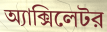
অ্যাক্সিলেটর